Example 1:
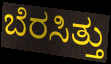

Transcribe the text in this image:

ಬೆರಸಿತ್ತು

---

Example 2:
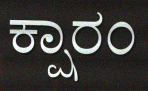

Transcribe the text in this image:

ಕ್ಷಾರಂ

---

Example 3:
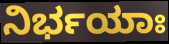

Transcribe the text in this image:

ನಿರ್ಭಯಾಃ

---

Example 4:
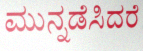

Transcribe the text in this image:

ಮುನ್ನಡೆಸಿದರೆ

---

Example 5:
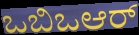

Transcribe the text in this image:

ಒಬಿಒಆರ್